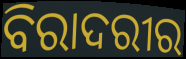
ବିରାଦରୀର